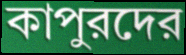
কাপুরদের